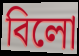
বিলো